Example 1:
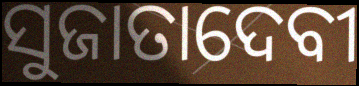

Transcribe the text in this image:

ସୁଜାତାଦେବୀ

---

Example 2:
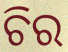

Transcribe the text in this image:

ଚିର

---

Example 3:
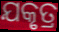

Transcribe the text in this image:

ଯକୃତ୍ର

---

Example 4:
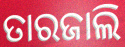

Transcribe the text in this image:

ତାରଜାଲି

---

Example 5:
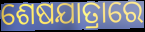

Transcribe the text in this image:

ଶେଷଯାତ୍ରାରେ